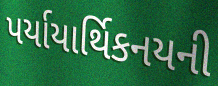
પર્યાયાર્થિકનયની